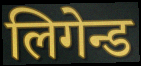
लिगेन्ड